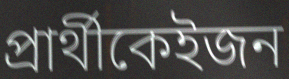
প্ৰাৰ্থীকেইজন